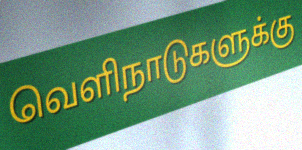
வெளிநாடுகளுக்கு